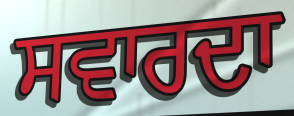
ਸਵਾਰਦਾ